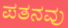
ಪತನವು